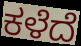
ಕಳೆದೆ